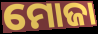
ମୋଜା